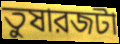
তুষারজটা